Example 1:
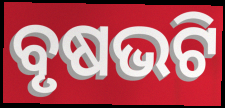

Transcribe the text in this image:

ବୃଷଭଟି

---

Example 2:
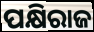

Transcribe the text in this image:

ପକ୍ଷିରାଜ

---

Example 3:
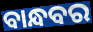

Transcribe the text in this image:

ବାନ୍ଧବର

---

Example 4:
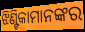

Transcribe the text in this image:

ଝିଣ୍ଟିକାମାନଙ୍କର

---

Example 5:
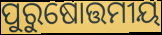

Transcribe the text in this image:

ପୁରୁଷୋତ୍ତମୀୟ